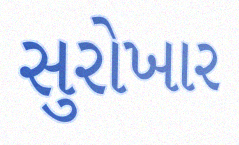
સુરોખાર